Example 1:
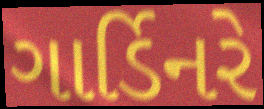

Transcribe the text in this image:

ગાર્ડિનરે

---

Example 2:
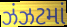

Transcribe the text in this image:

ઝંઝટમાં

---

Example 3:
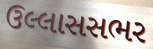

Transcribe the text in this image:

ઉલ્લાસસભર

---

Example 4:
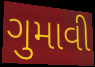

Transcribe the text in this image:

ગુમાવી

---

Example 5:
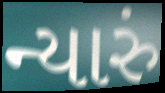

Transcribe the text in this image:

ન્યારું